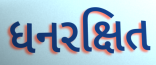
ધનરક્ષિત